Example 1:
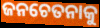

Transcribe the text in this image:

ଜନଚେତନାକୁ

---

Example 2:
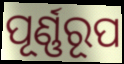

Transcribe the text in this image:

ପୂର୍ଣ୍ଣରୂପ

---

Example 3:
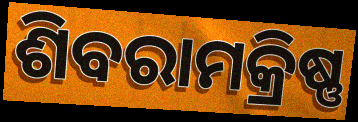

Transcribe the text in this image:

ଶିବରାମକ୍ରିଷ୍ଣ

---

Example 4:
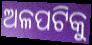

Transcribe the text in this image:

ଅଳପଟିକୁ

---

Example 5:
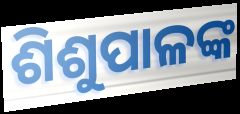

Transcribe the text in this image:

ଶିଶୁପାଳଙ୍କ